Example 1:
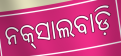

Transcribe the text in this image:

ନକ୍‌ସାଲବାଡ଼ି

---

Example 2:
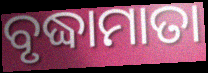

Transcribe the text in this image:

ବୃଦ୍ଧାମାତା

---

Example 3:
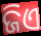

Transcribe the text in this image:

ଜିଏ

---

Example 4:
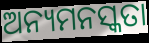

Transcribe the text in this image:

ଅନ୍ୟମନସ୍କତା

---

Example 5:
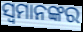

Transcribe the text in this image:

ସ୍ୱମାନଙ୍କର